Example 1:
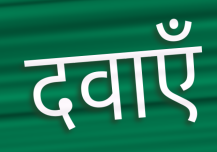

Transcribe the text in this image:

दवाएँ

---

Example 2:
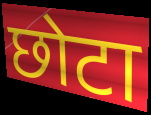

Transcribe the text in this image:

छोटा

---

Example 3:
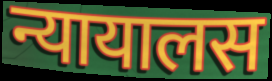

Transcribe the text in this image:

न्यायालस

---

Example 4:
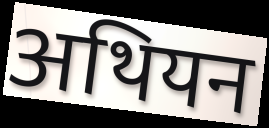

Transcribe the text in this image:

अथियन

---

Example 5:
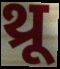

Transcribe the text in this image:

थ्रू